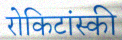
रोकिटांस्की